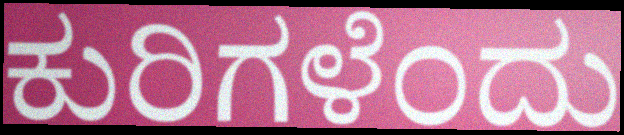
ಕುರಿಗಳೆಂದು